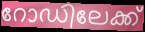
റോഡിലേക്ക്